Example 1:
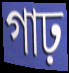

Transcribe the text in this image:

গাঢ়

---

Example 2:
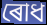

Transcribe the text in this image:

ৰোধ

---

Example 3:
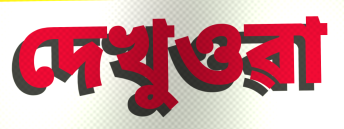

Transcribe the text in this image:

দেখুওৱা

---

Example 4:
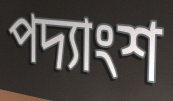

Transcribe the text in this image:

পদ্যাংশ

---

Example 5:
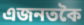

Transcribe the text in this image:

এজনতকৈ